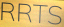
RRTS